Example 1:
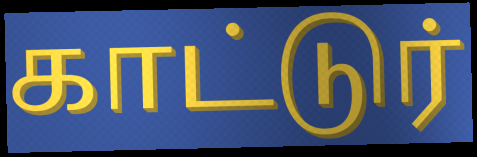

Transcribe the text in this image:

காட்டுர்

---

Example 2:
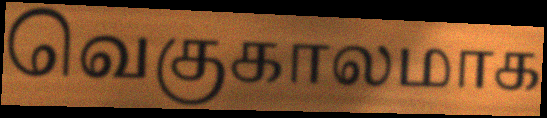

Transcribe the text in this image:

வெகுகாலமாக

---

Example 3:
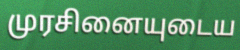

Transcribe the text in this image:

முரசினையுடைய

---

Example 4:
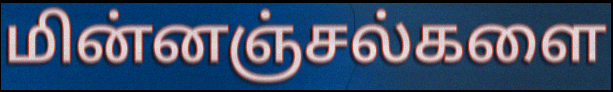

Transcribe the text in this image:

மின்னஞ்சல்களை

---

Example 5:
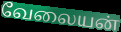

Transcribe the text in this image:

வேலையன்